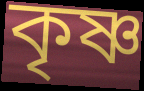
কৃষ্ণ